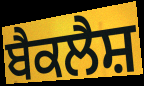
ਬੈਕਲੈਸ਼